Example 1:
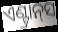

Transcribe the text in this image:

ଏଣ୍ଟ୍ରାନ୍‍ସ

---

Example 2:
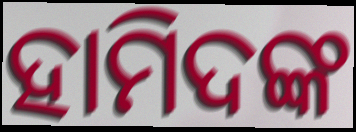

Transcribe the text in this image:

ହାମିଦଙ୍କ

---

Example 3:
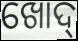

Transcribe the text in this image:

ଖୋଦ୍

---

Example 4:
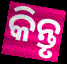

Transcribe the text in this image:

କିନ୍ତୃ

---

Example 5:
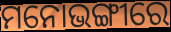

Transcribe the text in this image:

ମନୋଭଙ୍ଗୀରେ